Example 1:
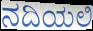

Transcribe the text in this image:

ನದಿಯಲಿ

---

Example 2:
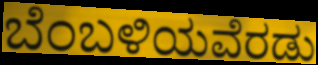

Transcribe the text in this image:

ಬೆಂಬಳಿಯವೆರಡು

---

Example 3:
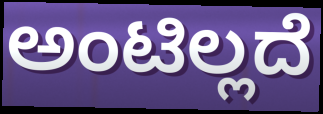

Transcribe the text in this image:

ಅಂಟಿಲ್ಲದೆ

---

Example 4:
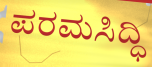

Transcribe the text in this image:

ಪರಮಸಿದ್ಧಿ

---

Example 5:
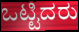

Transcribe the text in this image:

ಒಟ್ಟಿದರು